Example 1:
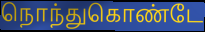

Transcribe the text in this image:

நொந்துகொண்டே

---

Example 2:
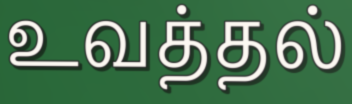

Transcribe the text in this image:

உவத்தல்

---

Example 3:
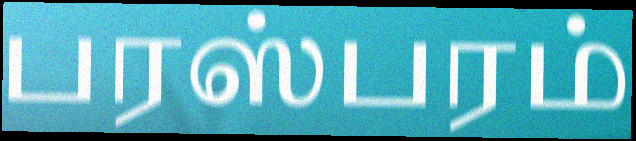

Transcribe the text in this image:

பரஸ்பரம்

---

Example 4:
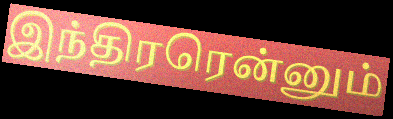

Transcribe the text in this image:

இந்திரரென்னும்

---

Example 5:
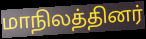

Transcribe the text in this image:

மாநிலத்தினர்